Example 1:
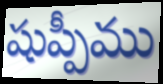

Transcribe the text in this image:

షుప్పీము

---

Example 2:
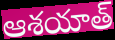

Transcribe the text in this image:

ఆశయాత్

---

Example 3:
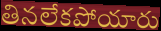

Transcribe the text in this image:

తినలేకపోయారు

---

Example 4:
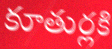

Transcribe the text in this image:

కూతుర్లకి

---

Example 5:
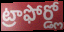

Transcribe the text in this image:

ట్రాఫోర్డ్లో